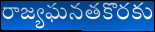
రాజ్యఘనతకొరకు